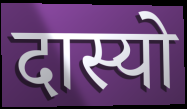
दास्यो